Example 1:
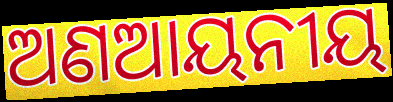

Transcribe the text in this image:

ଅଣଆୟନୀୟ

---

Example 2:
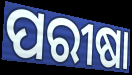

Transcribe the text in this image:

ପରୀଷା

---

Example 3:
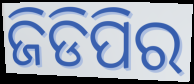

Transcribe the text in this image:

ଜିଡିପିର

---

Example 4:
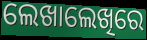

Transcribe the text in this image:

ଲେଖାଲେଖିରେ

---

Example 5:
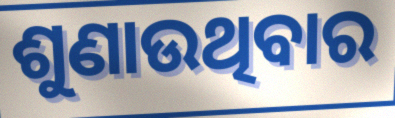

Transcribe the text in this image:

ଶୁଣାଉଥିବାର